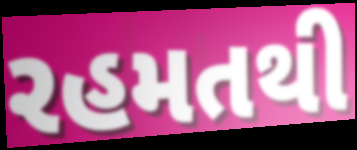
રહમતથી